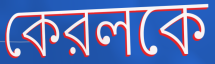
কেরলকে